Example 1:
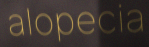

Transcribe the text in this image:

alopecia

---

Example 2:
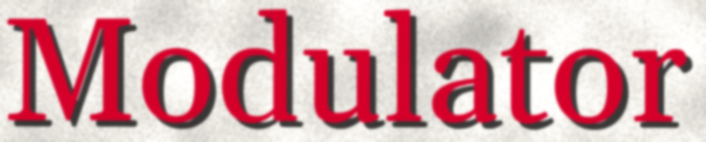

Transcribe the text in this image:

Modulator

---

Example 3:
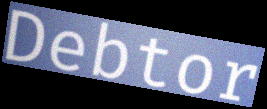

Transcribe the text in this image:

Debtor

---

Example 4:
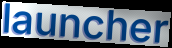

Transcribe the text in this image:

launcher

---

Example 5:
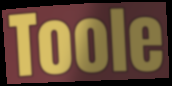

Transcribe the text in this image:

Toole